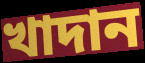
খাদান